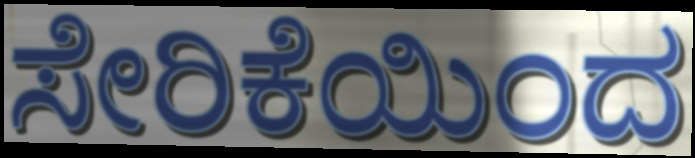
ಸೇರಿಕೆಯಿಂದ